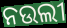
ନଉଲୀ